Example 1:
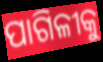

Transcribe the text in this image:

ପାଗିଳୀକୁ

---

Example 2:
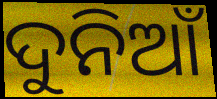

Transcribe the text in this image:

ଦୁନିଆଁ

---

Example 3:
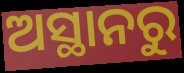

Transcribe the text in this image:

ଅସ୍ଥାନରୁ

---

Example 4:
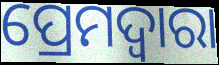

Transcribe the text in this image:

ପ୍ରେମଦ୍ୱାରା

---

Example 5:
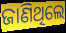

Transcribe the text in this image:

ଜାଣିଥିଲେ